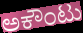
ಅಕೌಂಟು